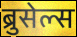
ब्रुसेल्स